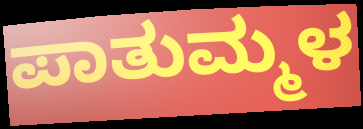
ಪಾತುಮ್ಮಳ